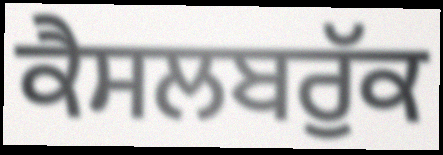
ਕੈਸਲਬਰੁੱਕ